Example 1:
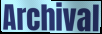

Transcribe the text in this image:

Archival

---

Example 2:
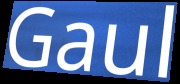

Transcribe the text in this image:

Gaul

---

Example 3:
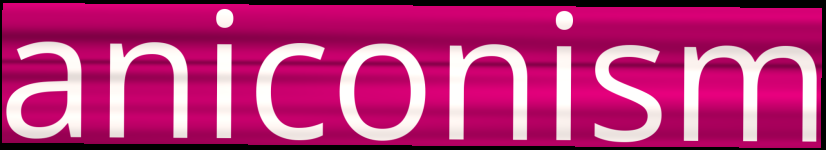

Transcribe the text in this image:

aniconism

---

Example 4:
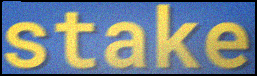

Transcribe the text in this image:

stake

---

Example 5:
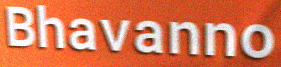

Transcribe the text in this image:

Bhavanno